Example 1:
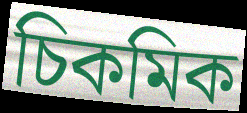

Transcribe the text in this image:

চিকমিক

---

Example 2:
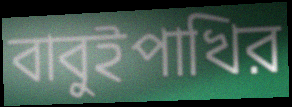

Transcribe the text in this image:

বাবুইপাখির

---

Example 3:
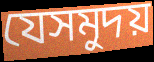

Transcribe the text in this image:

যেসমুদয়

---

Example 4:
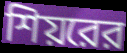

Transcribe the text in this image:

শিয়রের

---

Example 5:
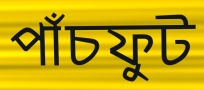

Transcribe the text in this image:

পাঁচফুট